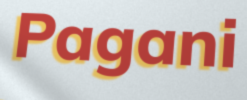
Pagani